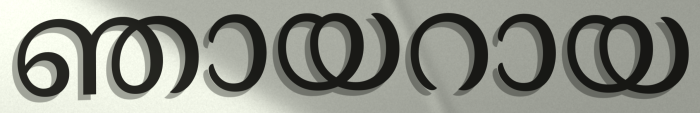
ഞായറായ